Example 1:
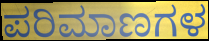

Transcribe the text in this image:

ಪರಿಮಾಣಗಳ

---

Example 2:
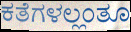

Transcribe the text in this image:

ಕತೆಗಳಲ್ಲಂತೂ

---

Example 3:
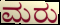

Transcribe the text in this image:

ಮರು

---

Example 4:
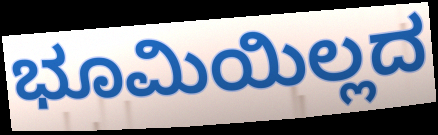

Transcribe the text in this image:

ಭೂಮಿಯಿಲ್ಲದ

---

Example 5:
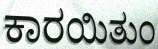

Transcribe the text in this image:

ಕಾರಯಿತುಂ